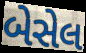
બેસેલ